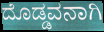
ದೊಡ್ಡವನಾಗಿ